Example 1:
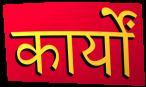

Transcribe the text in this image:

कार्यों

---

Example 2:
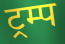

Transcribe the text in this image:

ट्रम्प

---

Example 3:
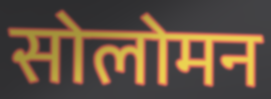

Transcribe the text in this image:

सोलोमन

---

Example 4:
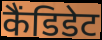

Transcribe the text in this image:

कैंडिडेट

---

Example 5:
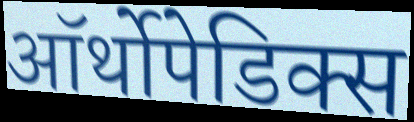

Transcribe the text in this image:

ऑर्थोपेडिक्स